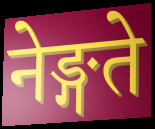
नेङ्गते